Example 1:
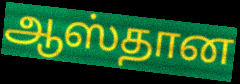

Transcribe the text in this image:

ஆஸ்தான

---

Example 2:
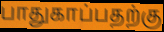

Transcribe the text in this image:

பாதுகாப்பதற்கு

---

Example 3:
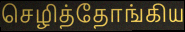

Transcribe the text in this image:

செழித்தோங்கிய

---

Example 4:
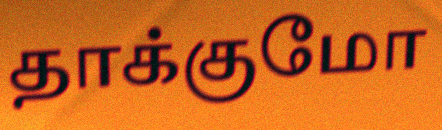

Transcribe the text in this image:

தாக்குமோ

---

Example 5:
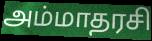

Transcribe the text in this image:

அம்மாதரசி